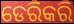
ଡେରିକରି